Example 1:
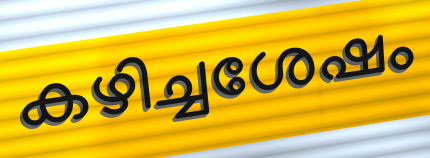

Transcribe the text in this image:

കഴിച്ചശേഷം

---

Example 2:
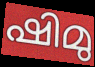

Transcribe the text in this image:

ഷിമു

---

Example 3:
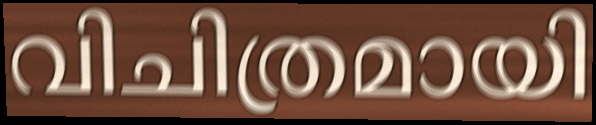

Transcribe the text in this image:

വിചിത്രമായി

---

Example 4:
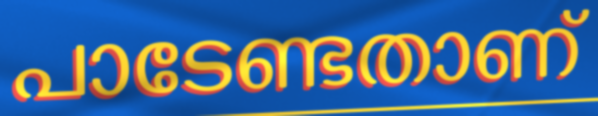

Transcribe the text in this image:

പാടേണ്ടതാണ്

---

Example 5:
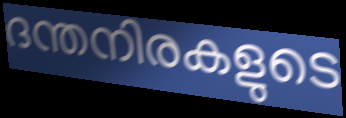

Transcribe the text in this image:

ദന്തനിരകളുടെ